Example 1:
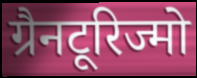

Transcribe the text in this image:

ग्रैनटूरिज्मो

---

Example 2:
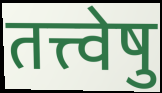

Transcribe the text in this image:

तत्त्वेषु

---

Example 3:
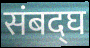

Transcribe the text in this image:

संबद्घ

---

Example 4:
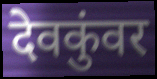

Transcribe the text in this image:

देवकुंवर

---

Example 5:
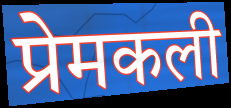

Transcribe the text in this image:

प्रेमकली